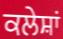
ਕਲੇਸ਼ਾਂ